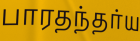
பாரதந்தர்ய